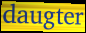
daugter